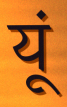
यूं